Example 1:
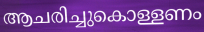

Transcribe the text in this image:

ആചരിച്ചുകൊള്ളണം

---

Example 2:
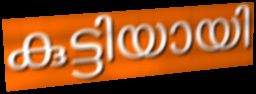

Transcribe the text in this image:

കുട്ടിയായി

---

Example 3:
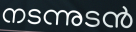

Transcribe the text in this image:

നടന്നുടൻ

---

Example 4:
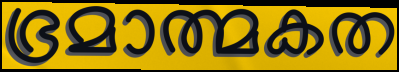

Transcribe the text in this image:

ഭ്രമാത്മകത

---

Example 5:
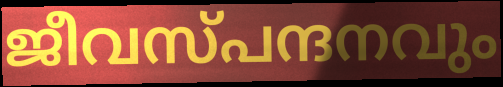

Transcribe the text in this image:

ജീവസ്പന്ദനവും